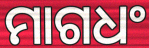
ମାଗଧଂ